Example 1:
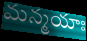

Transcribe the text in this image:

మన్మయాః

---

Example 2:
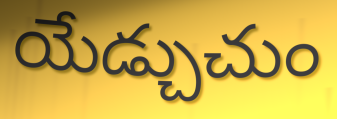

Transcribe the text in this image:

యేడ్చుచుం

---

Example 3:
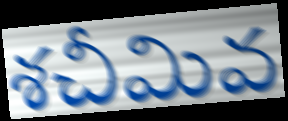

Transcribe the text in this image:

శచీమివ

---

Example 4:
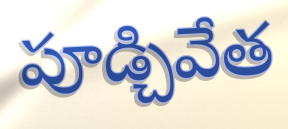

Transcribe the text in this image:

పూడ్చివేత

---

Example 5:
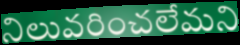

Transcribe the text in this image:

నిలువరించలేమని